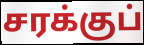
சரக்குப்